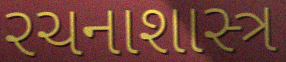
રચનાશાસ્ત્ર